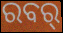
ରବର୍